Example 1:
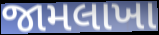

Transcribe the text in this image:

જામલાખા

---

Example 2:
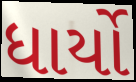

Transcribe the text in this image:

ધાર્યો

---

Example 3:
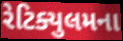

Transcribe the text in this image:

રેટિક્યુલમના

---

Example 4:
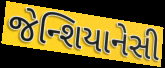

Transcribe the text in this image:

જેન્શિયાનેસી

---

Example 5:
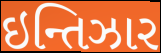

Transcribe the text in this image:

ઇન્તિઝાર